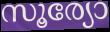
സൂര്യോ